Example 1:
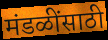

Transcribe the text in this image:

मंडळींसाठी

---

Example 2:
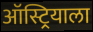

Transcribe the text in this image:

ऑस्ट्रियाला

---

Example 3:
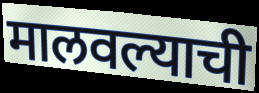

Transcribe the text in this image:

मालवल्याची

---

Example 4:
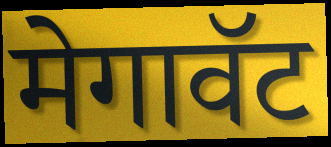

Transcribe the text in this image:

मेगावॅट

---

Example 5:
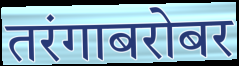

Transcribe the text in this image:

तरंगाबरोबर